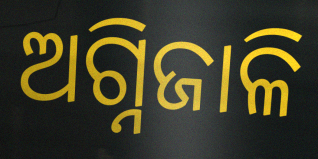
ଅଗ୍ନିଜାଳି